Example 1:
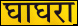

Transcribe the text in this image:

घाघरा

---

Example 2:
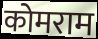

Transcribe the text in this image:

कोमराम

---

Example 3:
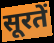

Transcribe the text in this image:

सूरतें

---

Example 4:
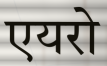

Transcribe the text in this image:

एयरो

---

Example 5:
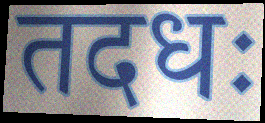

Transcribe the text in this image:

तदधः